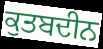
ਕੁਤਬਦੀਨ